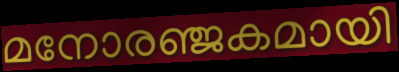
മനോരഞ്ജകമായി